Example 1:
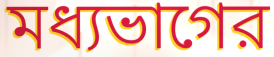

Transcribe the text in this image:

মধ্যভাগের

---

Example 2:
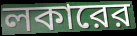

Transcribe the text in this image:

লকারের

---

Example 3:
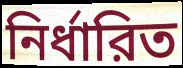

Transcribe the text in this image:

নির্ধারিত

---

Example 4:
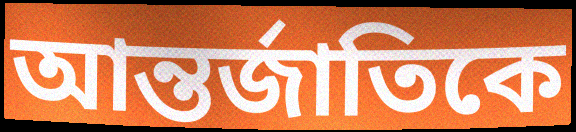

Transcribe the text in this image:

আন্তর্জাতিকে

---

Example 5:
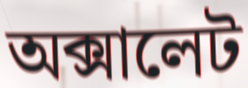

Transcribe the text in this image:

অক্সালেট